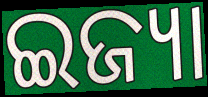
ଇଜ୍ୟା